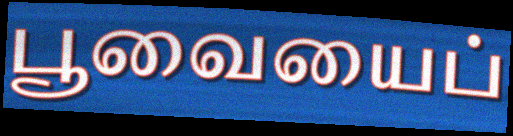
பூவையைப்